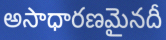
అసాధారణమైనదీ